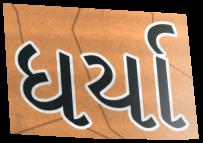
ધર્યા